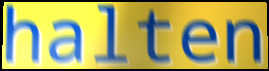
halten